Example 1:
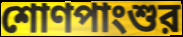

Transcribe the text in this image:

শোণপাংশুর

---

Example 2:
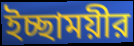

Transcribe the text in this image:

ইচ্ছাময়ীর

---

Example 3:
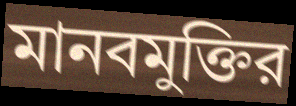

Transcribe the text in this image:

মানবমুক্তির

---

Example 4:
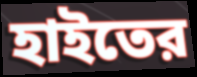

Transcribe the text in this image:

হাইতের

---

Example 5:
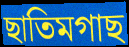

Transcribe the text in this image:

ছাতিমগাছ